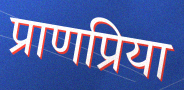
प्राणप्रिया